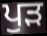
ਪੁੜ